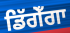
ਡਿੱਗੇਁਗਾ